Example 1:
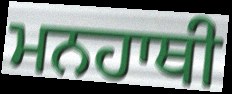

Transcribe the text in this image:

ਮਨਹਾਥੀ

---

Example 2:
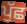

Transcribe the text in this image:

ਪੁੱਛ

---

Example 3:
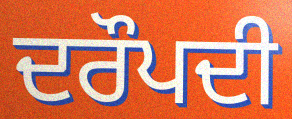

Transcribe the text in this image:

ਦਰੌਪਦੀ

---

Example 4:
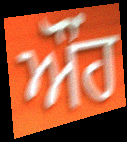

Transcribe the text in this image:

ਔਂਹ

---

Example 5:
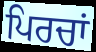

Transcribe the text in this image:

ਪਿਰਚਾਂ